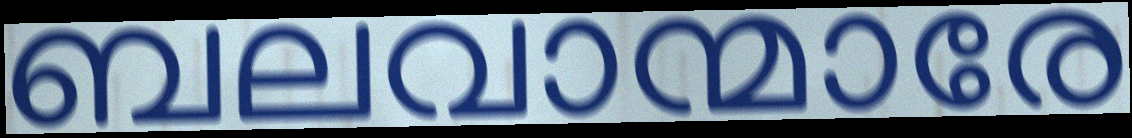
ബലവാന്മാരേ